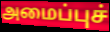
அமைப்புச்